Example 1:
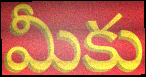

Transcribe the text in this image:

మీకు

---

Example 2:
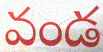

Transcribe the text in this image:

వండ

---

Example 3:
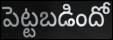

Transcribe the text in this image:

పెట్టబడిందో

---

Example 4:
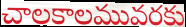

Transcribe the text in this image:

చాలకాలమువరకు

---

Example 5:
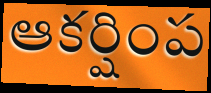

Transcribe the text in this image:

ఆకర్షింప